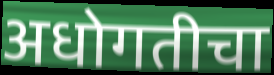
अधोगतीचा